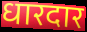
धारदार